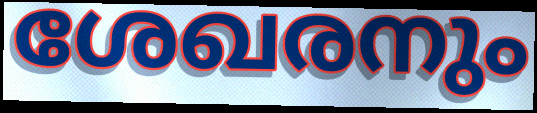
ശേഖരനും